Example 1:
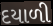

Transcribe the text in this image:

દયાળી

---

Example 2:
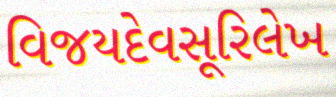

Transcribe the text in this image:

વિજયદેવસૂરિલેખ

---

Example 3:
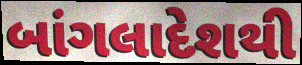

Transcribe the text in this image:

બાંગલાદેશથી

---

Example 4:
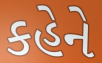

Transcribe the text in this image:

કહેને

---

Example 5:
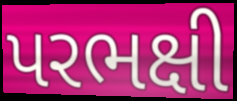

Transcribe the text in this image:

પરભક્ષી